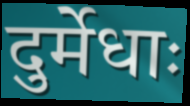
दुर्मेधाः